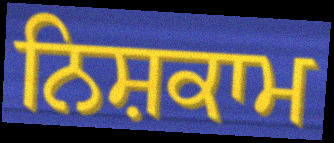
ਨਿਸ਼ਕਾਮ